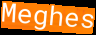
Meghes